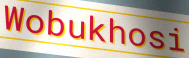
Wobukhosi